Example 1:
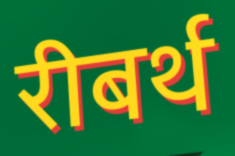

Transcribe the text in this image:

रीबर्थ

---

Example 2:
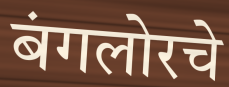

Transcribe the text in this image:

बंगलोरचे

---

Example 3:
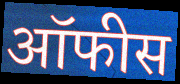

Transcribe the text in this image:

ऑफीस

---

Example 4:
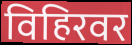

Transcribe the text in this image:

विहिरवर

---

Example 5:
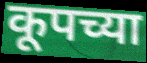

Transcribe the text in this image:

कूपच्या